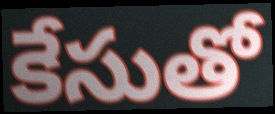
కేసుతో